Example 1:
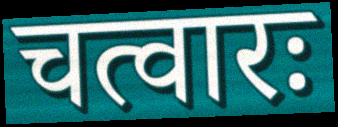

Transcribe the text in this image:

चत्वारः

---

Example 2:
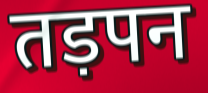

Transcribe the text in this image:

तड़पन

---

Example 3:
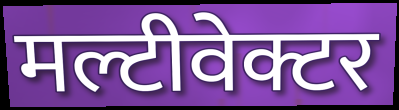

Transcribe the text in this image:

मल्टीवेक्टर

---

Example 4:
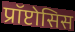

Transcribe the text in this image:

प्रॉप्टोसिस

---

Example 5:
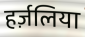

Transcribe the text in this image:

हर्ज़लिया